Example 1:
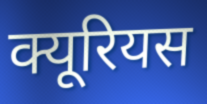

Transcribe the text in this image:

क्यूरियस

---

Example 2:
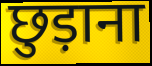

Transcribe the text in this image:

छुड़ाना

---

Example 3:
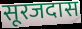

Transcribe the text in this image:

सूरजदास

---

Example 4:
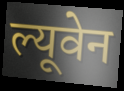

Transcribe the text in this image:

ल्यूवेन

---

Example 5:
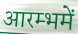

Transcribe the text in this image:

आरम्भमें